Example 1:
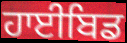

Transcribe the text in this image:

ਹਾਈਬਿਡ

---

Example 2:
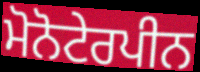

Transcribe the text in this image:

ਮੋਨੋਟੇਰਪੀਨ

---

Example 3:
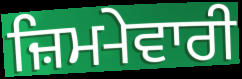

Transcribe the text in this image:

ਜ਼ਿਮ੍ਮੇਵਾਰੀ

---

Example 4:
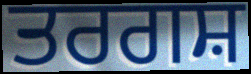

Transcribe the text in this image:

ਤਰਗਸ਼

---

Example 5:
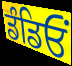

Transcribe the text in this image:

ਡੰਡਿਓਂ